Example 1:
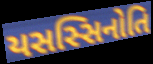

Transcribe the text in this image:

યસસ્સિનોતિ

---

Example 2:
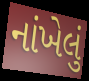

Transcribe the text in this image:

નાંખેલું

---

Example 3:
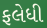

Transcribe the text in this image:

ફલેધી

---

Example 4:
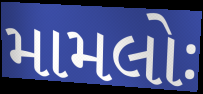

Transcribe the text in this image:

મામલોઃ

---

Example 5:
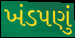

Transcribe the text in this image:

ખંડપણું